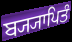
ਬ੍ਯ੍ਯਾਪਿਤੰ